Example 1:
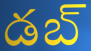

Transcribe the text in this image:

డబ్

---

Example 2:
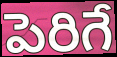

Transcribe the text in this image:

పెరిగే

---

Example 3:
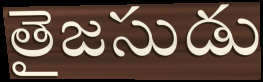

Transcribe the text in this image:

తైజసుడు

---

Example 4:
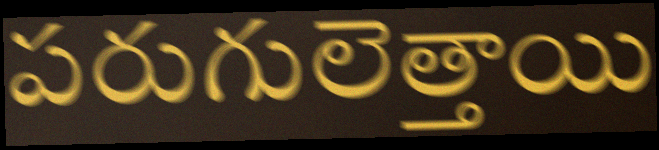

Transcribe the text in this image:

పరుగులెత్తాయి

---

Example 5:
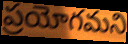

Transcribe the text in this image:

ప్రయోగమని